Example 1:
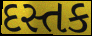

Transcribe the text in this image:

દસ્તક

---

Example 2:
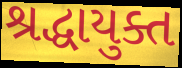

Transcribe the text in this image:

શ્રદ્ધાયુક્ત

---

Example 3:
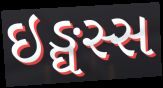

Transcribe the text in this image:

ઇઙ્ઘસ્સ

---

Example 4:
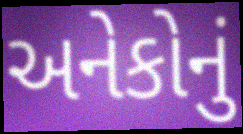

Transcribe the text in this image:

અનેકોનું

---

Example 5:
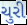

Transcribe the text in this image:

ચુરી